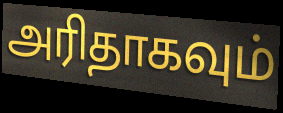
அரிதாகவும்